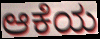
ಆಕೆಯ